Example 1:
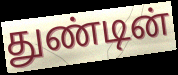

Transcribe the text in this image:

துண்டின்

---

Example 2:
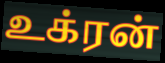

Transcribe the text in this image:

உக்ரன்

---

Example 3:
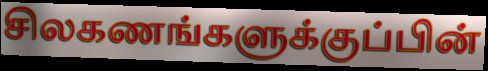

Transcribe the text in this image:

சிலகணங்களுக்குப்பின்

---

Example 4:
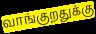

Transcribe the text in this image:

வாங்குறதுக்கு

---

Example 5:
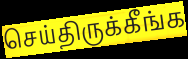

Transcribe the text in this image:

செய்திருக்கீங்க